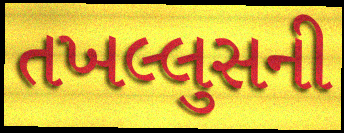
તખલ્લુસની